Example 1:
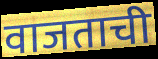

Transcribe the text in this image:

वाजताची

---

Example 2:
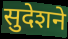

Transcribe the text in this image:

सुदेशने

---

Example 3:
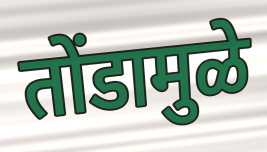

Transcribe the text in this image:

तोंडामुळे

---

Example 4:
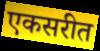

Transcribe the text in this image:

एकसरीत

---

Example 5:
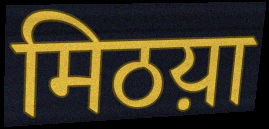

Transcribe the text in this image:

मिठय़ा